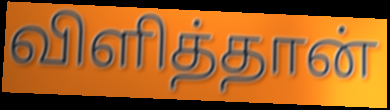
விளித்தான்